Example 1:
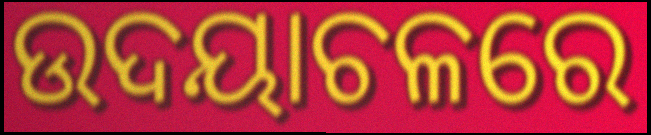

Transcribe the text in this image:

ଉଦୟାଚଳରେ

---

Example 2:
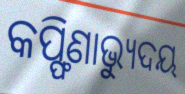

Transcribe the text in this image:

କପ୍ଫିଣାଭ୍ୟୁଦୟ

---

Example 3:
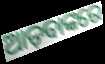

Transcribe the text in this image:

ଆଡ଼ବାଙ୍କରେ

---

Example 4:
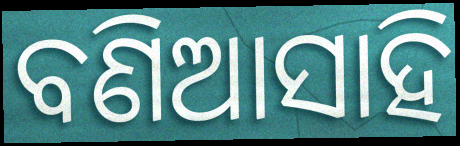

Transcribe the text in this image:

ବଣିଆସାହି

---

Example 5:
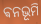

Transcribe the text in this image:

ଵନଭୂମି